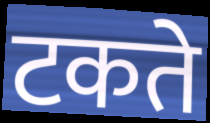
टकते